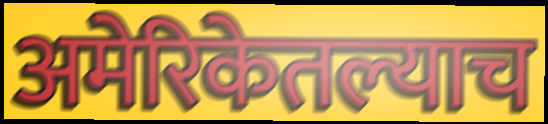
अमेरिकेतल्याच